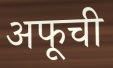
अफूची